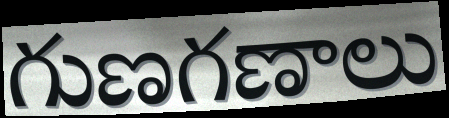
గుణగణాలు